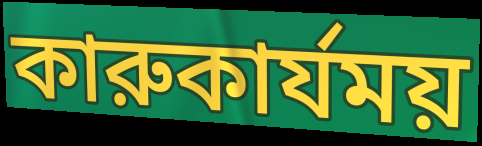
কারুকার্যময়